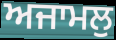
ਅਜਾਮਲੁ